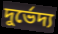
দুর্ভেদ্য